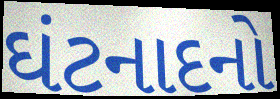
ઘંટનાદનો